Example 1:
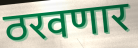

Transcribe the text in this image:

ठरवणार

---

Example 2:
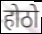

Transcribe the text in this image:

होठो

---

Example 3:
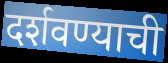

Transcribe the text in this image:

दर्शवण्याची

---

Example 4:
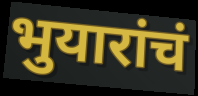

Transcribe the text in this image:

भुयारांचं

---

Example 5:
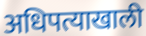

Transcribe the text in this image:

अधिपत्याखाली